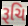
રૂચિ